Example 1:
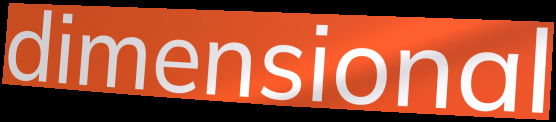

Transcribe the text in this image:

dimensional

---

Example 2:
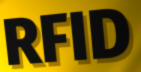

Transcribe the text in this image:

RFID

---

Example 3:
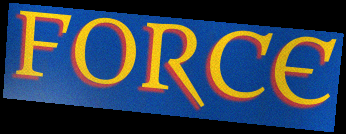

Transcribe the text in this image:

FORCE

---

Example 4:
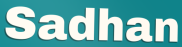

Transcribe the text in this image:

Sadhan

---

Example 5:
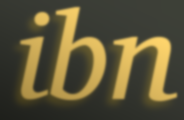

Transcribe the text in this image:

ibn